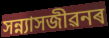
সন্ন্যাসজীৱনৰ